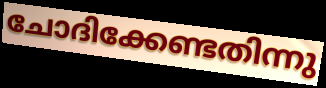
ചോദിക്കേണ്ടതിന്നു